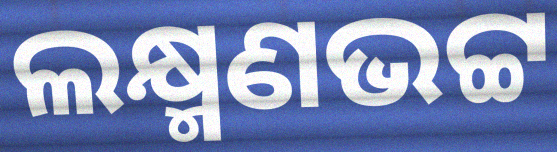
ଲକ୍ଷ୍ମଣଭଟ୍ଟ